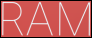
RAM